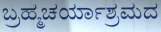
ಬ್ರಹ್ಮಚರ್ಯಾಶ್ರಮದ